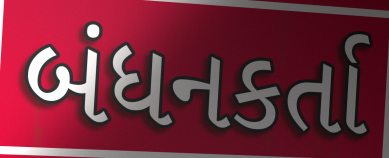
બંધનકર્તા